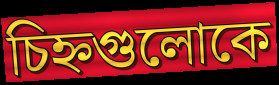
চিহ্নগুলোকে